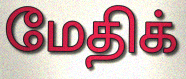
மேதிக்